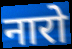
नारो